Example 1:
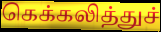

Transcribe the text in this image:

கெக்கலித்துச்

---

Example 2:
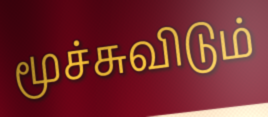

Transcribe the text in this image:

மூச்சுவிடும்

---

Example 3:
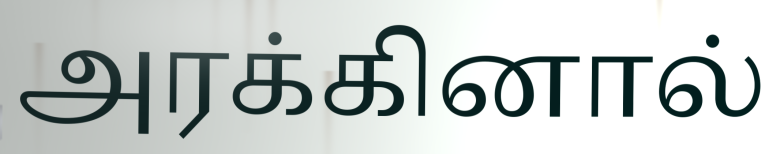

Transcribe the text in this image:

அரக்கினால்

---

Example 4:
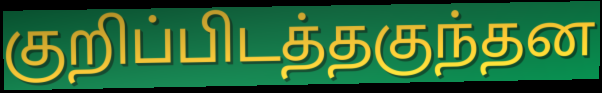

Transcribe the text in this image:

குறிப்பிடத்தகுந்தன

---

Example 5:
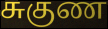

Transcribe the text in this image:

சுகுண